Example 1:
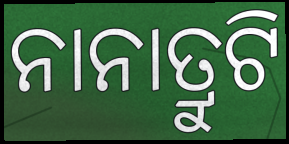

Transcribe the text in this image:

ନାନାତ୍ରୁଟି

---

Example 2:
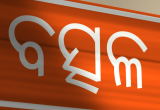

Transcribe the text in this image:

ବତ୍ସଳ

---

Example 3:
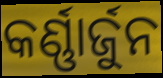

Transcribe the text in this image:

କର୍ଣ୍ଣାର୍ଜୁନ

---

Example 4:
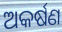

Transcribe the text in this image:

ଅକର୍ଷଣ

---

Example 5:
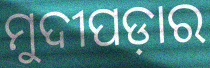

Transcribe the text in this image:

ମୁଦୀପଡ଼ାର